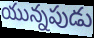
యున్నపుడు